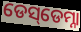
ଡେସ୍‌ଡେମ୍ନା